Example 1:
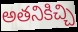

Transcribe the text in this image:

అతనికిచ్చి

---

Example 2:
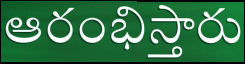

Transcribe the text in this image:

ఆరంభిస్తారు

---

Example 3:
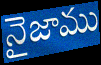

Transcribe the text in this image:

నైజాము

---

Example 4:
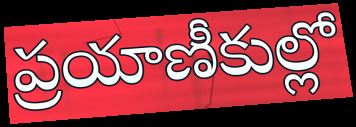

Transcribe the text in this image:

ప్రయాణీకుల్లో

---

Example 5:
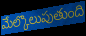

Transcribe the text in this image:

మేల్కొలుపుతుంది